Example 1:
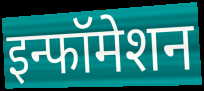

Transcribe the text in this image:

इन्फॉमेशन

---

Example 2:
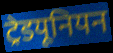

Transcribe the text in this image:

ट्रेडयूनियन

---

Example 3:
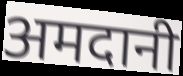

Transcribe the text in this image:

अमदानी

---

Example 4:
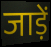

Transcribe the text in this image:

जाड़ें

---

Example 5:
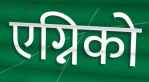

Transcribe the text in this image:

एग्निको